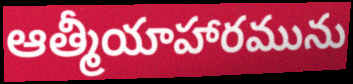
ఆత్మీయాహారమును